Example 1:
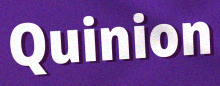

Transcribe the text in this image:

Quinion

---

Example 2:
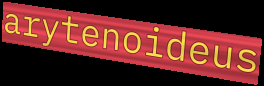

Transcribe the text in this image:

arytenoideus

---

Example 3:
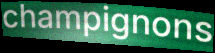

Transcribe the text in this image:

champignons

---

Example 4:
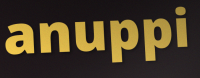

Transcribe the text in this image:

anuppi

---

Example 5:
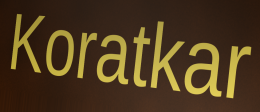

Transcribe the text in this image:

Koratkar